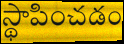
స్థాపించడం